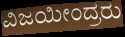
ವಿಜಯೀಂದ್ರರು